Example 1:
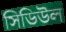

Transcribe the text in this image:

সিডিউল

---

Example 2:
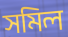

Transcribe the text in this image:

সমিল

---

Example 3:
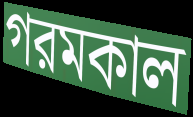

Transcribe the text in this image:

গরমকাল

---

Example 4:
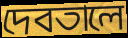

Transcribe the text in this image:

দেবতালে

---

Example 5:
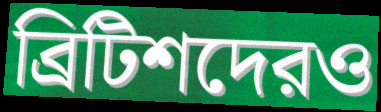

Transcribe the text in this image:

ব্রিটিশদেরও